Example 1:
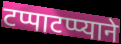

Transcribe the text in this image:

टप्पाटप्प्याने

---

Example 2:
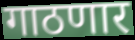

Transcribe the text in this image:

गाठणार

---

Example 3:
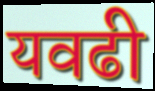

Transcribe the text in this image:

यवढी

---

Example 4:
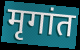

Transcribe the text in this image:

मृगांत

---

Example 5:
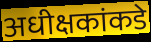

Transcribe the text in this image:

अधीक्षकांकडे